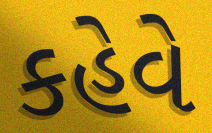
કહેવે